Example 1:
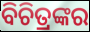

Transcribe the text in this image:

ବିଚିତ୍ରଙ୍କର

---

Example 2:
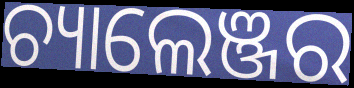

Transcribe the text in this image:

ଚ୍ୟାଲେଞ୍ଜର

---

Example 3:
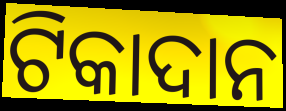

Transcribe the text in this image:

ଟିକାଦାନ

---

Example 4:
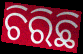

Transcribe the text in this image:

ଚିରିଛି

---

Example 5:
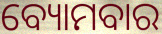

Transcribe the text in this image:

ବ୍ୟୋମବାର